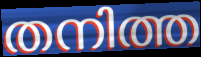
തനിത്ത